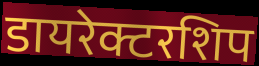
डायरेक्टरशिप